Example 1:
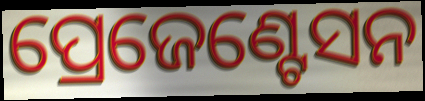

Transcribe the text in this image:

ପ୍ରେଜେଣ୍ଟେସନ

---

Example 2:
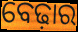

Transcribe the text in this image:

ବେଢ଼ାର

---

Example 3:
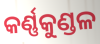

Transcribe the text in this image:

କର୍ଣ୍ଣକୁଣ୍ଡଳ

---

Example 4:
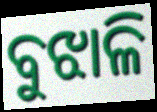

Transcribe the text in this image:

ବୁଝାଳି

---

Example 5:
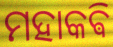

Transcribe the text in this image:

ମହାକଵି